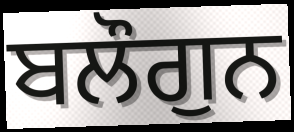
ਬਲੌਗੁਨ